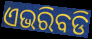
ଏଭରିବଡି